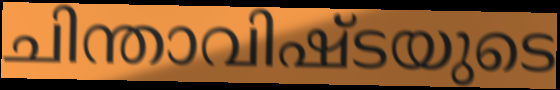
ചിന്താവിഷ്ടയുടെ